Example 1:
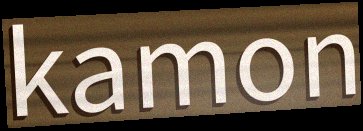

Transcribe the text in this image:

kamon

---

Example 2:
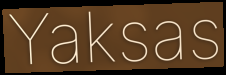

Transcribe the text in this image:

Yaksas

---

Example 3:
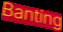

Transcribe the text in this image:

Banting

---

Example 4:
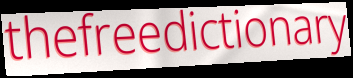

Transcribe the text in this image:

thefreedictionary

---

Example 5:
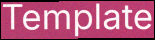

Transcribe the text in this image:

Template